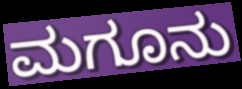
ಮಗೂನು